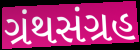
ગ્રંથસંગ્રહ